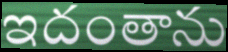
ఇదంతాను